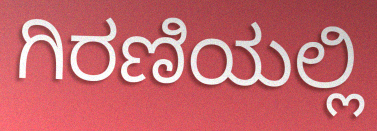
ಗಿರಣಿಯಲ್ಲಿ